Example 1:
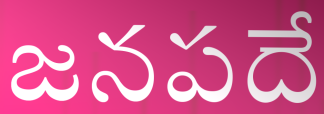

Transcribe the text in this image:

జనపదే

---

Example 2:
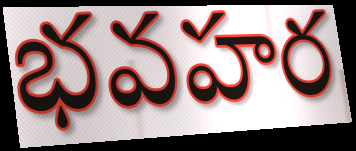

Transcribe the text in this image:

భవహర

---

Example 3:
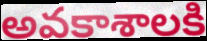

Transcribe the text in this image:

అవకాశాలకి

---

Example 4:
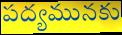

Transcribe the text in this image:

పద్యమునకు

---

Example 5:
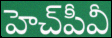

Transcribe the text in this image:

హెచ్‌పీవీ